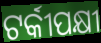
ଟର୍କୀପକ୍ଷୀ